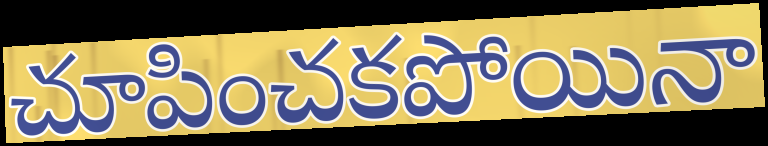
చూపించకపోయినా